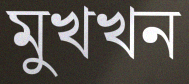
মুখখন